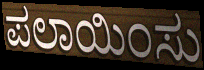
ಪಲಾಯಿಂಸು